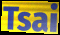
Tsai